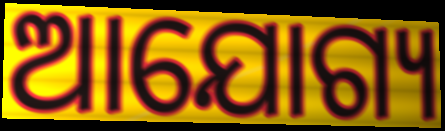
ଆଯୋଗ୍ୟ